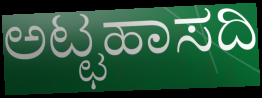
ಅಟ್ಟಹಾಸದಿ